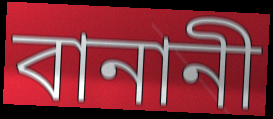
বানানী